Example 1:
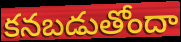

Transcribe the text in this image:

కనబడుతోందా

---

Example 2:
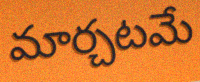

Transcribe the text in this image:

మార్చటమే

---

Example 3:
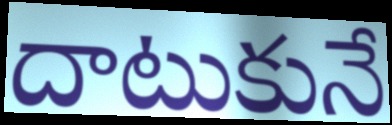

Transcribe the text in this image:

దాటుకునే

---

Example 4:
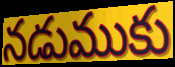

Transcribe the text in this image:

నడుముకు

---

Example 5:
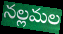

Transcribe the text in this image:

నల్లమల